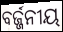
ବର୍ଜ୍ଜନୀୟ